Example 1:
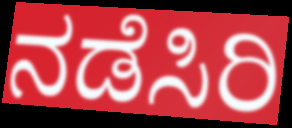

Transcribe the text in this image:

ನಡೆಸಿರಿ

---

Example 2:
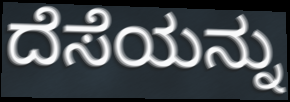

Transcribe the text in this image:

ದೆಸೆಯನ್ನು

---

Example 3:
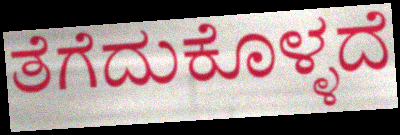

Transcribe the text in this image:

ತೆಗೆದುಕೊಳ್ಳದೆ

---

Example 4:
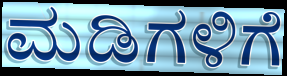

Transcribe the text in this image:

ಮಡಿಗಳಿಗೆ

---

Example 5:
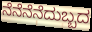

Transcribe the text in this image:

ನೆನೆನೆನೆದುಬ್ಬದ